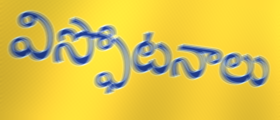
విస్ఫోటనాలు